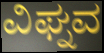
ವಿಘ್ನವ